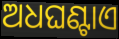
ଅଧଘଣ୍ଟାଏ